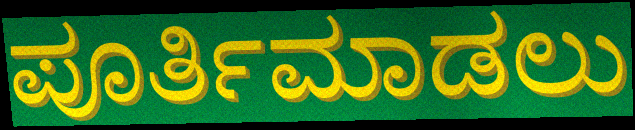
ಪೂರ್ತಿಮಾಡಲು